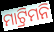
ମାଟ୍ରିମନି